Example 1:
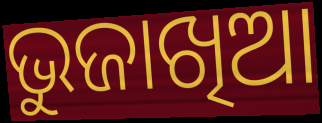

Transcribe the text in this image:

ଭୁଜାଖିଆ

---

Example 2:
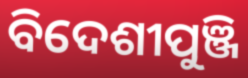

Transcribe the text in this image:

ବିଦେଶୀପୁଞ୍ଜି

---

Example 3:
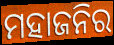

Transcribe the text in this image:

ମହାଜନିର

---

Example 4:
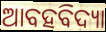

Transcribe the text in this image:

ଆବହବିଦ୍ୟା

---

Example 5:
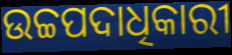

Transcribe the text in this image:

ଉଚ୍ଚପଦାଧିକାରୀ